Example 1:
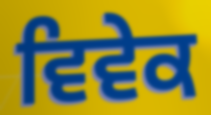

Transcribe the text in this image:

ਵਿਵੇਕ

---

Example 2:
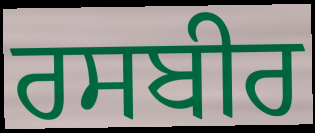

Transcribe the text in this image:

ਰਸਬੀਰ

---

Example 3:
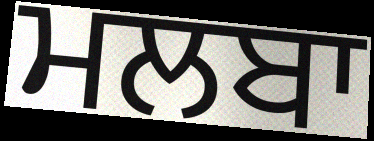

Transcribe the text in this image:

ਮਲਬਾ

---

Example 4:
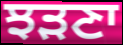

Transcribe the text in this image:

ਝੜਣਾ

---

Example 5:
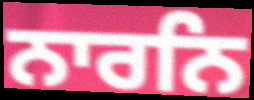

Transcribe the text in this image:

ਨਾਰਨਿ